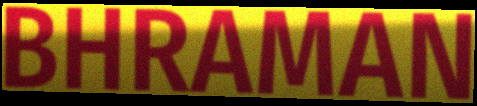
BHRAMAN